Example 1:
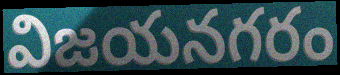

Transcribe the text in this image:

విజయనగరం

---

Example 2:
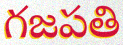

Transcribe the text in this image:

గజపతి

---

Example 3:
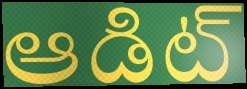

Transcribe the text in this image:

ఆడిట్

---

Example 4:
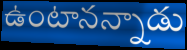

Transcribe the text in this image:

ఉంటానన్నాడు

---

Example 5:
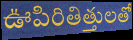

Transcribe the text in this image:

ఊపిరితిత్తులతో